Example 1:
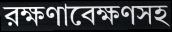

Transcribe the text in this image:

রক্ষণাবেক্ষণসহ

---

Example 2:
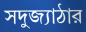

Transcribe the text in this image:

সদুজ্যাঠার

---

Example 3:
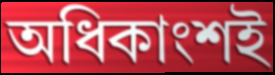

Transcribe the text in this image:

অধিকাংশই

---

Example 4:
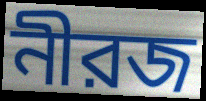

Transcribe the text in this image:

নীরজ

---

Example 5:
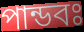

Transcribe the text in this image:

পান্ডবঃ